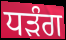
ਧੜੰਗ